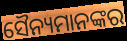
ସୈନ୍ୟମାନଙ୍କର